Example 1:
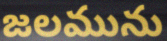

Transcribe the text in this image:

జలమును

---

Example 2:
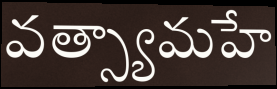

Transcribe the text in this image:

వత్స్యామహే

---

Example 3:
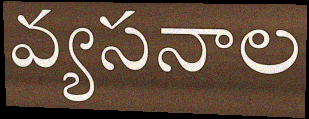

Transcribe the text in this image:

వ్యసనాల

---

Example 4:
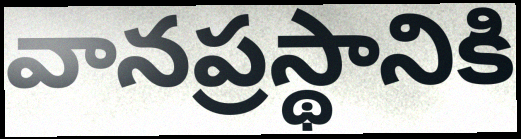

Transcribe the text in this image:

వానప్రస్థానికి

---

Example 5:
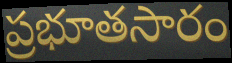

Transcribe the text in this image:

ప్రభూతసారం